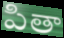
పితా